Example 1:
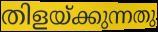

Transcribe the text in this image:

തിളയ്ക്കുന്നതു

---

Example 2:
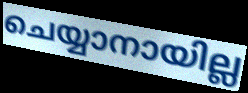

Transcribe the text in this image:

ചെയ്യാനായില്ല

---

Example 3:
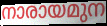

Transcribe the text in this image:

നാരായമുന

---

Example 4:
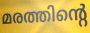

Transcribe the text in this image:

മരത്തിന്റെ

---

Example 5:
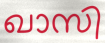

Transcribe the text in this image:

ഖാസി